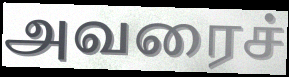
அவரைச்